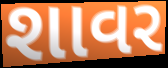
શાવર